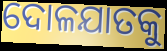
ଦୋଳଯାତକୁ